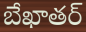
బేఖాతర్